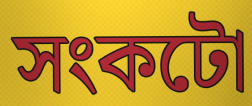
সংকটো